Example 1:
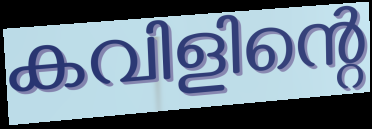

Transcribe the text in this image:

കവിളിന്റെ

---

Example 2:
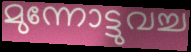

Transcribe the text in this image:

മുന്നോട്ടുവച്ച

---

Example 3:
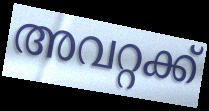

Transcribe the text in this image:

അവറ്റക്ക്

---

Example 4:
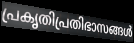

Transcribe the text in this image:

പ്രകൃതിപ്രതിഭാസങ്ങൾ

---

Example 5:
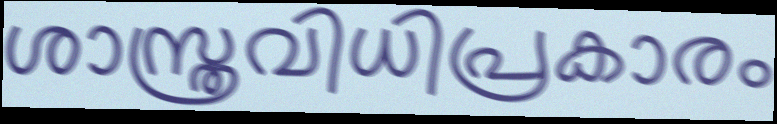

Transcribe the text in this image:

ശാസ്ത്രവിധിപ്രകാരം